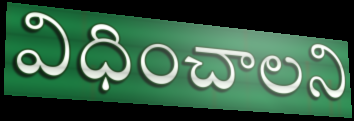
విధించాలని